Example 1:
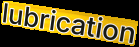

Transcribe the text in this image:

lubrication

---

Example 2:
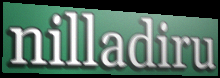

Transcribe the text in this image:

nilladiru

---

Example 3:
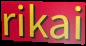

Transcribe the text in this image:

rikai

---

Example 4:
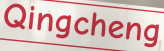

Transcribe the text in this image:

Qingcheng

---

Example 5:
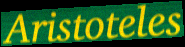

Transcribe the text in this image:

Aristoteles